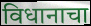
विधानाचा